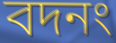
বদনং